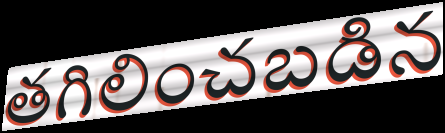
తగిలించబడిన